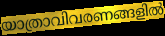
യാത്രാവിവരണങ്ങളിൽ